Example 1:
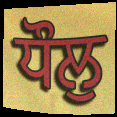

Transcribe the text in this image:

ਧੌਲੁ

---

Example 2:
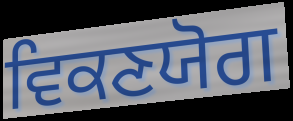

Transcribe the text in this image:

ਵਿਕਣਯੋਗ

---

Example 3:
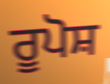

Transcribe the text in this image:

ਰੂਪੋਸ਼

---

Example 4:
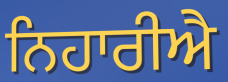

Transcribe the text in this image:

ਨਿਹਾਰੀਐ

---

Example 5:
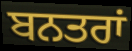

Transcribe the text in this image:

ਬਨਤਰਾਂ